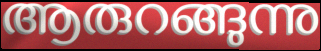
ആരുറങ്ങുന്നു